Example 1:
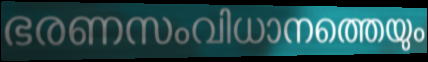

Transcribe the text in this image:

ഭരണസംവിധാനത്തെയും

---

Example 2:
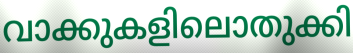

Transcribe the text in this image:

വാക്കുകളിലൊതുക്കി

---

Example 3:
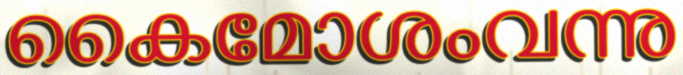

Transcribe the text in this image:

കൈമോശംവന്നു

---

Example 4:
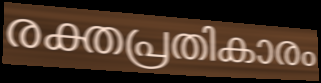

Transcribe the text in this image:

രക്തപ്രതികാരം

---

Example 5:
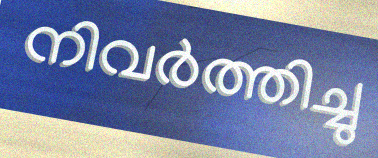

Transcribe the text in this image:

നിവർത്തിച്ചു